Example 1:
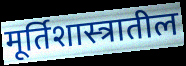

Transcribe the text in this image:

मूर्तिशास्त्रातील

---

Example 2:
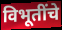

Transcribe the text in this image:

विभूतींचे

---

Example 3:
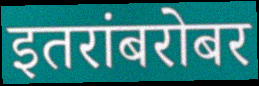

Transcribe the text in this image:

इतरांबरोबर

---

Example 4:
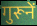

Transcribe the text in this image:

गुरूनें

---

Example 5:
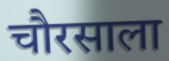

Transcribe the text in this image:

चौरसाला